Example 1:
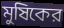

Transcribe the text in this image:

মুষিকের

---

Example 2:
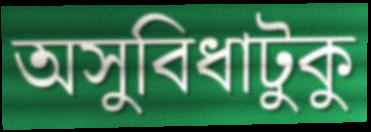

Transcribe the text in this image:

অসুবিধাটুকু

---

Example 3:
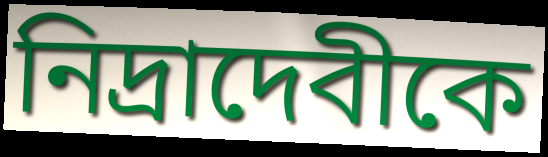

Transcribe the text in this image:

নিদ্রাদেবীকে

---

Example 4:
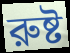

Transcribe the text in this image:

রুষ্ট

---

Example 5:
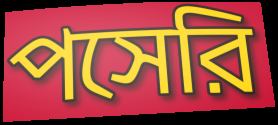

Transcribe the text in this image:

পসেরি